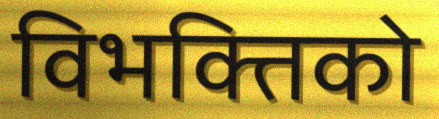
विभक्तिको